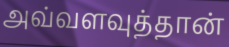
அவ்வளவுத்தான்